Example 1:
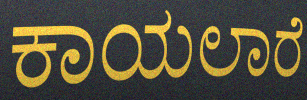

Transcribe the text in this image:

ಕಾಯಲಾರೆ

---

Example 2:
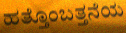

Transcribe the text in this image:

ಹತ್ತೊಂಬತ್ತನೆಯ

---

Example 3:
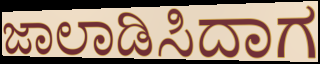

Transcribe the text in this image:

ಜಾಲಾಡಿಸಿದಾಗ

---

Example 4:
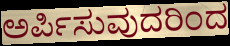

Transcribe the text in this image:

ಅರ್ಪಿಸುವುದರಿಂದ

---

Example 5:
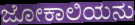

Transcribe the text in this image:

ಜೋಕಾಲಿಯನು